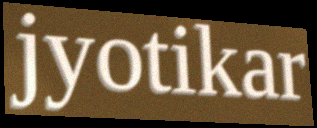
jyotikar